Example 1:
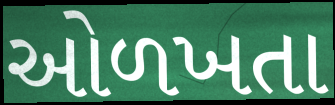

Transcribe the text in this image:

ઓળખતા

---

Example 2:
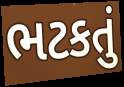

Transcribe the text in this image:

ભટકતું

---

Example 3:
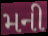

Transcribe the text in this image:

મની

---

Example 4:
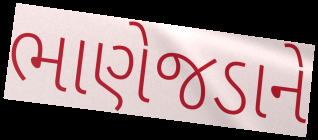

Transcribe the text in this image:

ભાણેજડાને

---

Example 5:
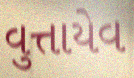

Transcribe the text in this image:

વુત્તાયેવ